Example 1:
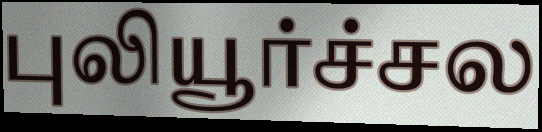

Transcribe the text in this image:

புலியூர்ச்சல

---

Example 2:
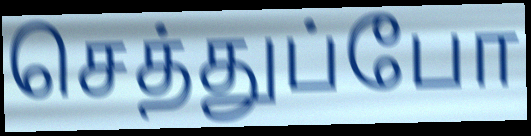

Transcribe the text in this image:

செத்துப்போ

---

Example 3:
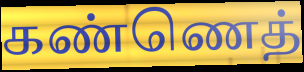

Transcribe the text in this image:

கண்ணெத்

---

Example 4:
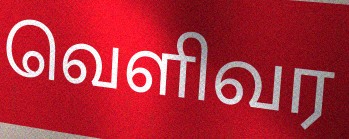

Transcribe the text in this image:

வெளிவர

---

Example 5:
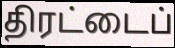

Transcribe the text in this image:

திரட்டைப்